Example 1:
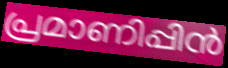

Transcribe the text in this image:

പ്രമാണിപ്പിൻ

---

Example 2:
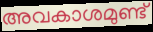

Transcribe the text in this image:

അവകാശമുണ്ട്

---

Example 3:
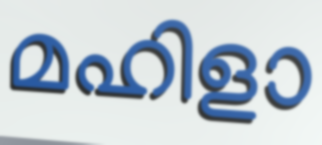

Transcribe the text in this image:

മഹിളാ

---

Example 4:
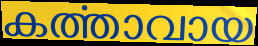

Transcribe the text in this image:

കൎത്താവായ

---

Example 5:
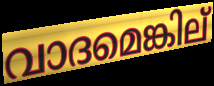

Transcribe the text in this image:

വാദമെങ്കില്